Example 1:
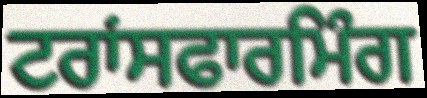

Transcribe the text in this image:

ਟਰਾਂਸਫਾਰਮਿੰਗ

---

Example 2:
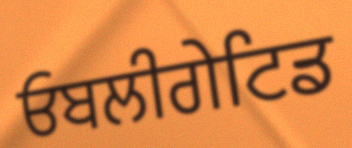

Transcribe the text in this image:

ਓਬਲੀਗੇਟਿਡ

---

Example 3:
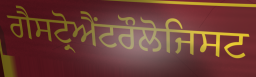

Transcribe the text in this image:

ਗੈਸਟ੍ਰੋਐਂਟਰੌਲੋਜਿਸਟ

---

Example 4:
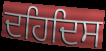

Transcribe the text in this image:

ਦਹਿਦਿਸ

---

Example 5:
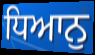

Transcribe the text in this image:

ਧਿਆਨੁ